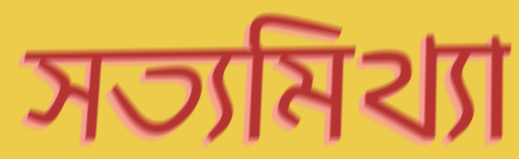
সত্যমিথ্যা